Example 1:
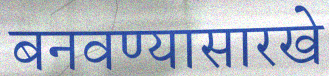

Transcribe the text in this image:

बनवण्यासारखे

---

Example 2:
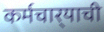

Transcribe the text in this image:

कर्मचार्‍याची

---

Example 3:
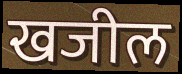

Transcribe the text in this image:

खजील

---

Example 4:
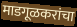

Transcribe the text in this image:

माडगूळकरांचा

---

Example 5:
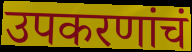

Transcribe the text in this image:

उपकरणांचं